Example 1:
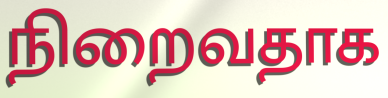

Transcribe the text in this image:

நிறைவதாக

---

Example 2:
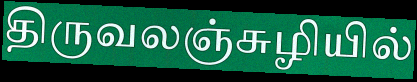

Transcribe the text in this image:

திருவலஞ்சுழியில்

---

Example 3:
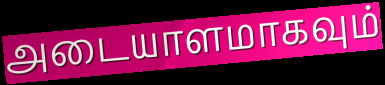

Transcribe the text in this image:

அடையாளமாகவும்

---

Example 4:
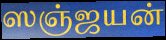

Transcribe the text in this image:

ஸஞ்ஜயன்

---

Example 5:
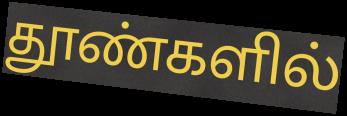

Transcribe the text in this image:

தூண்களில்